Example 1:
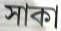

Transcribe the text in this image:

সাকা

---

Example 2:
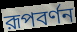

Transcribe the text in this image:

রূপবর্ণন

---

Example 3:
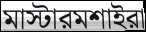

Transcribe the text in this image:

মাস্টারমশাইরা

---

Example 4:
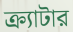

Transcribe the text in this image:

ক্র্যাটার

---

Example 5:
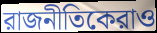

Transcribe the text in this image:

রাজনীতিকেরাও